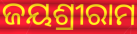
ଜୟଶ୍ରୀରାମ